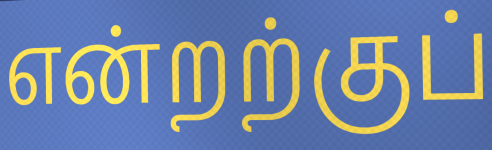
என்றற்குப்